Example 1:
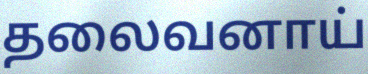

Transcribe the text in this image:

தலைவனாய்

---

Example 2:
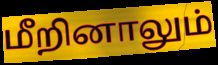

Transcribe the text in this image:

மீறினாலும்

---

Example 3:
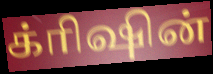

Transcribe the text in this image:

க்ரிஷின்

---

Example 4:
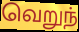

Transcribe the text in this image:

வெறுந்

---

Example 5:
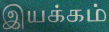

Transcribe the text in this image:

இயக்கம்